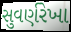
સુવર્ણરેખા